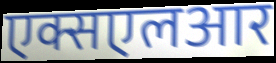
एक्सएलआर